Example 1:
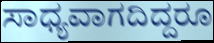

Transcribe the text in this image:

ಸಾಧ್ಯವಾಗದಿದ್ದರೂ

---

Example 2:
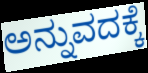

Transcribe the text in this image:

ಅನ್ನುವದಕ್ಕೆ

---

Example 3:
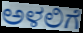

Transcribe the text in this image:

ಅಳಲಿಗೆ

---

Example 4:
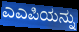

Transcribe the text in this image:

ಎಎಪಿಯನ್ನು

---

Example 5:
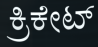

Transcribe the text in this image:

ಕ್ರಿಕೇಟ್